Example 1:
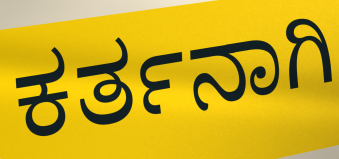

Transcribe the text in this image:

ಕರ್ತನಾಗಿ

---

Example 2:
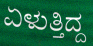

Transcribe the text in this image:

ಏಳುತ್ತಿದ್ದ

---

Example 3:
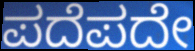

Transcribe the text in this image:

ಪದೆಪದೇ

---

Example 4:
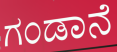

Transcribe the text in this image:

ಗಂಡಾನೆ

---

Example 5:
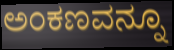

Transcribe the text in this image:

ಅಂಕಣವನ್ನೂ